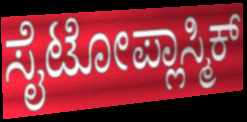
ಸೈಟೋಪ್ಲಾಸ್ಮಿಕ್